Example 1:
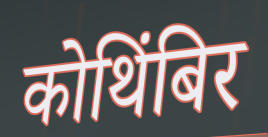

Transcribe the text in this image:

कोथिंबिर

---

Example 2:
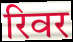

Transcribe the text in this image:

रिवर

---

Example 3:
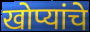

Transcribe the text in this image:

खोप्यांचे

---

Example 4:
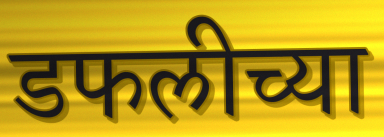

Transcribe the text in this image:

डफलीच्या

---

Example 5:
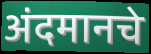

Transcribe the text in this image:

अंदमानचे